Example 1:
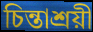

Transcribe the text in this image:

চিন্তাশ্রয়ী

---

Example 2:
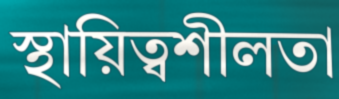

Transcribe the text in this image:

স্থায়িত্বশীলতা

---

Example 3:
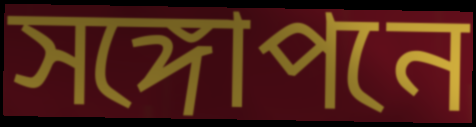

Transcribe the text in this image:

সঙ্গোপনে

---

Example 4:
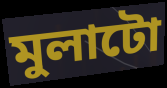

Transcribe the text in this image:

মুলাটো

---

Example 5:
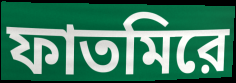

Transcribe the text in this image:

ফাতমিরে